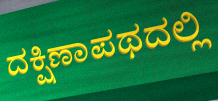
ದಕ್ಷಿಣಾಪಥದಲ್ಲಿ